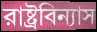
রাষ্ট্রবিন্যাস